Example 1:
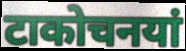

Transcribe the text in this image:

टाकोचनयां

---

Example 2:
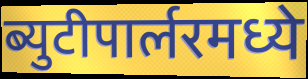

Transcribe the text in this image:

ब्युटीपार्लरमध्ये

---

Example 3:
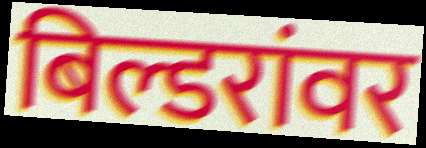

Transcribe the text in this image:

बिल्डरांवर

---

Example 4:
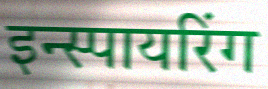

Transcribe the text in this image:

इन्स्पायरिंग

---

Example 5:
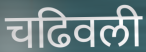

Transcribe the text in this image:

चढिवली